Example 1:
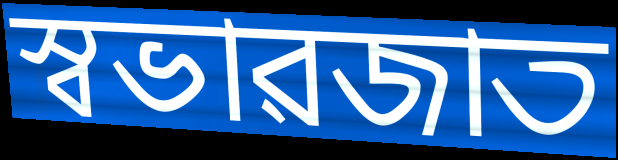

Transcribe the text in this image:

স্বভাৱজাত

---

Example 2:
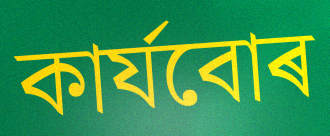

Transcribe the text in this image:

কাৰ্যবোৰ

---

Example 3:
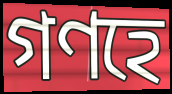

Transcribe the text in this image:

গণহে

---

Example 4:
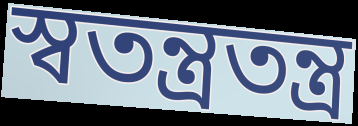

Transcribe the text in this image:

স্বতন্ত্ৰতন্ত্ৰ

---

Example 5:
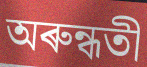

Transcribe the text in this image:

অৰুন্ধতী